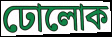
ঢোলোক